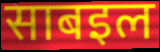
साबइल